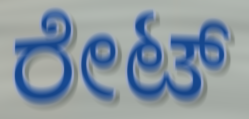
ರೇಟ್